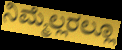
ನಿಮ್ಮೆಲ್ಲರಲ್ಲೂ